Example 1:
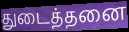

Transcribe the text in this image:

துடைத்தனை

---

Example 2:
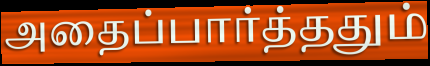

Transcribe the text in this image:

அதைப்பார்த்ததும்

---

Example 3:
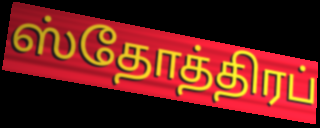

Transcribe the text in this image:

ஸ்தோத்திரப்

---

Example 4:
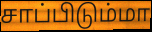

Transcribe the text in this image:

சாப்பிடும்மா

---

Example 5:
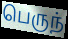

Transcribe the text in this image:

பெருந்